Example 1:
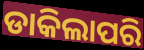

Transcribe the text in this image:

ଡାକିଲାପରି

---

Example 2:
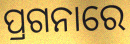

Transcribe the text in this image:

ପ୍ରଗନାରେ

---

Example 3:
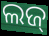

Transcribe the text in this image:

ଲଜ୍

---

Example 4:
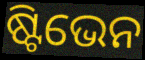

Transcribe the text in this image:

ଷ୍ଟିଭେନ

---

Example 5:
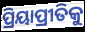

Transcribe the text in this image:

ପ୍ରିୟାପ୍ରୀତିକୁ